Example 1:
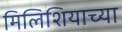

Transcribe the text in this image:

मिलिशियाच्या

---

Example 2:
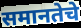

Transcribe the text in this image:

समानतेचे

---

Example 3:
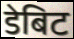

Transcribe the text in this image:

डेबिट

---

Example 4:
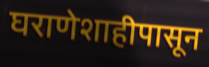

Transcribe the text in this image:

घराणेशाहीपासून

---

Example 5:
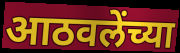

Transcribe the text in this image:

आठवलेंच्या